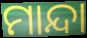
ମାନ୍ଦା